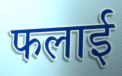
फलाई